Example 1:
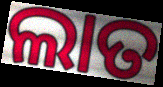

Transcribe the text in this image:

ଲାତ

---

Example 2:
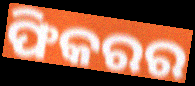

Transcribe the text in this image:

ଫିକରର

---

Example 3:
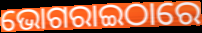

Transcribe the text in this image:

ଭୋଗରାଇଠାରେ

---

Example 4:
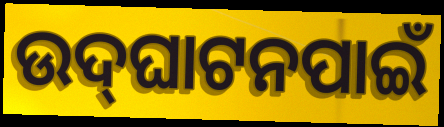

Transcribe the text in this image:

ଉଦ୍‌ଘାଟନପାଇଁ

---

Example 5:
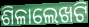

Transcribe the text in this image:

ଶିଳାଲେଖଟି